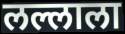
लल्लाला